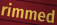
rimmed